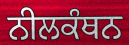
ਨੀਲਕੰਥਨ